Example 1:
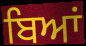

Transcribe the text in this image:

ਬਿਆਂ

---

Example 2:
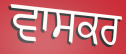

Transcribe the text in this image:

ਵਾਸਕਰ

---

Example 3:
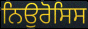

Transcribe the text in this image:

ਨਿਉਰੋਸਿਸ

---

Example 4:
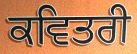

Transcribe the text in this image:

ਕਵਿਤਰੀ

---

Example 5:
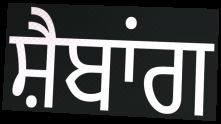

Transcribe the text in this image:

ਸ਼ੈਬਾਂਗ